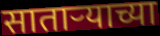
साताऱ्याच्या